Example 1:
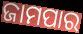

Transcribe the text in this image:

ଜାମପାର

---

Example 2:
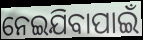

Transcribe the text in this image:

ନେଇଯିବାପାଇଁ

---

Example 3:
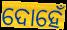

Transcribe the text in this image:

ଦୋହେଁ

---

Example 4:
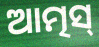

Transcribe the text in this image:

ଆତ୍ମସ୍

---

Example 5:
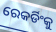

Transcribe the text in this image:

ରେକର୍ଡିଂକୁ